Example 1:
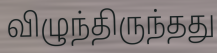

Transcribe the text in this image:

விழுந்திருந்தது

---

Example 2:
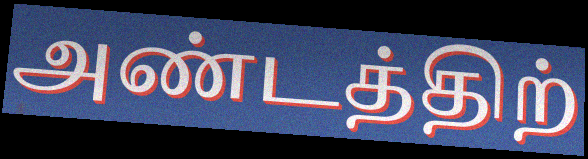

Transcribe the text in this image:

அண்டத்திற்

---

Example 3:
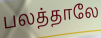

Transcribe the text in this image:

பலத்தாலே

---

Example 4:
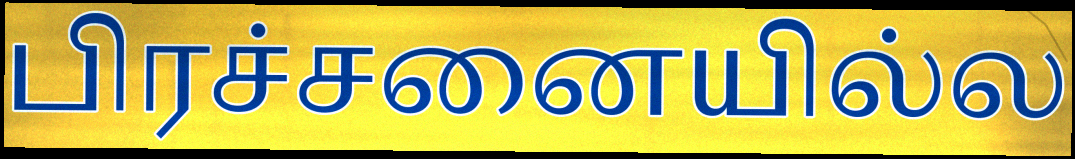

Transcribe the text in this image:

பிரச்சனையில்ல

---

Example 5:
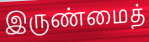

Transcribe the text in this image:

இருண்மைத்